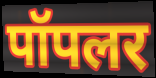
पॉपलर